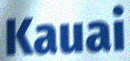
Kauai